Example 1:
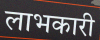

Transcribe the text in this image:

लाभकारी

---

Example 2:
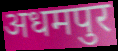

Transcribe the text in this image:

अधमपुर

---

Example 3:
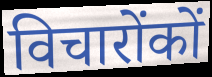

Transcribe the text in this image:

विचारोंकों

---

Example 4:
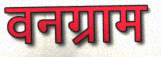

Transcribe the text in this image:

वनग्राम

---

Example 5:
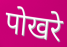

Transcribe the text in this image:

पोखरे